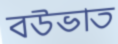
বউভাত